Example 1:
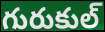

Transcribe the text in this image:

గురుకుల్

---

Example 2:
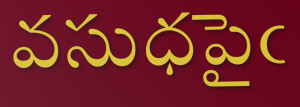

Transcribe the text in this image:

వసుధపైఁ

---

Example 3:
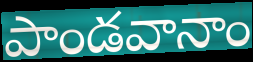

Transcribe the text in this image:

పాండవానాం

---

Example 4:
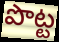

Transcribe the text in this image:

పొట్ట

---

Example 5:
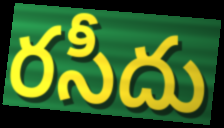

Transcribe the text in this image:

రసీదు